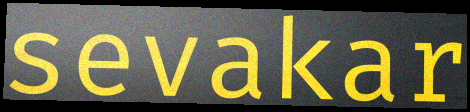
sevakar